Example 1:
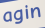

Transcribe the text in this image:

agin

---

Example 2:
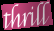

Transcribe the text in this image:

thrill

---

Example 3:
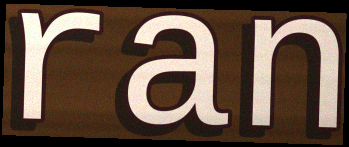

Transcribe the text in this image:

ran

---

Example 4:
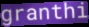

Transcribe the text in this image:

granthi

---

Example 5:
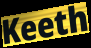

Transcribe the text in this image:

Keeth